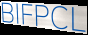
BIFPCL